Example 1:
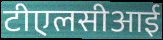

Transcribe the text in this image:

टीएलसीआई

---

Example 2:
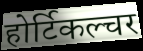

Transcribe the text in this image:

होर्टिकल्चर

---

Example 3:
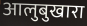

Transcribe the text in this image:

आलुबुखारा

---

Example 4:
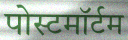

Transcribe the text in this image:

पोस्टमॉर्टम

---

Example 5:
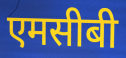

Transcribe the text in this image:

एमसीबी